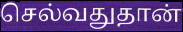
செல்வதுதான்